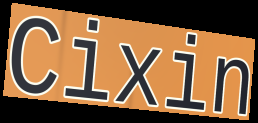
Cixin